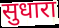
सुधारा